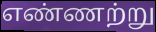
எண்ணற்று